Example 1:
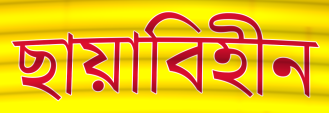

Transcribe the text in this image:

ছায়াবিহীন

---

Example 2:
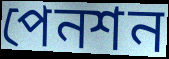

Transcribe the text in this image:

পেনশন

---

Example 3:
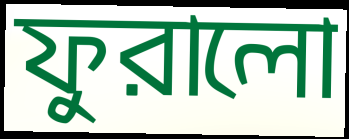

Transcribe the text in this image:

ফুরালো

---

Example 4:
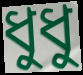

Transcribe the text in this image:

ধুধু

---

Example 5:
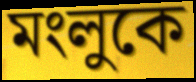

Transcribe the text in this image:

মংলুকে